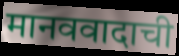
मानववादाची